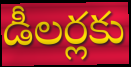
డీలర్లకు